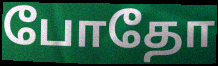
போதோ